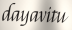
dayavitu